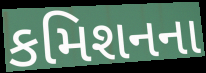
કમિશનના